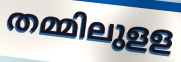
തമ്മിലുളള